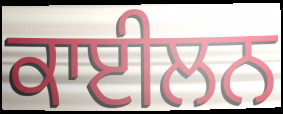
ਕਾਈਲਨ